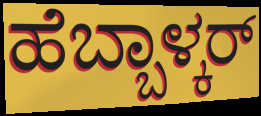
ಹೆಬ್ಬಾಳ್ಕರ್